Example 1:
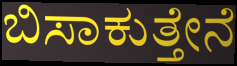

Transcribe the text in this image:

ಬಿಸಾಕುತ್ತೇನೆ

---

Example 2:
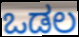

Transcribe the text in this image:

ಒಡಲ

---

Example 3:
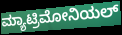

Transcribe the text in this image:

ಮ್ಯಾಟ್ರಿಮೋನಿಯಲ್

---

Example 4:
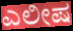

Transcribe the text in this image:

ಎಲೀಷ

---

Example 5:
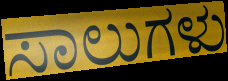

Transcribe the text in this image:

ಸಾಲುಗಳು